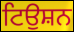
ਟਿਉਸ਼ਨ